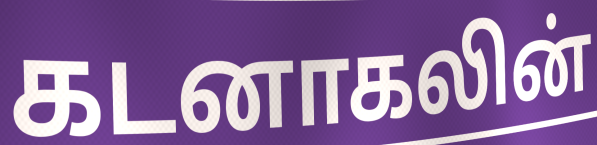
கடனாகலின்